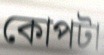
কোপটা